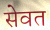
सेवत